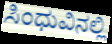
ಸಿಂಧುವಿನಲ್ಲಿ